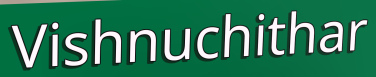
Vishnuchithar